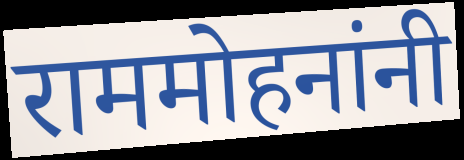
राममोहनांनी